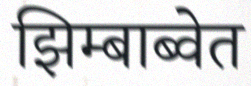
झिम्बाब्वेत